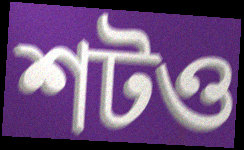
শটও